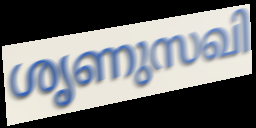
ശൃണുസഖി